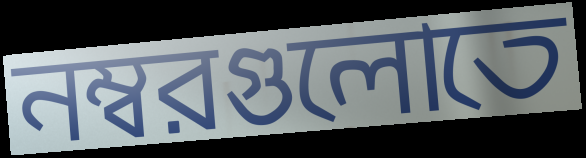
নম্বরগুলোতে